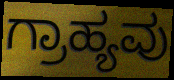
ಗ್ರಾಹ್ಯವು